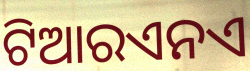
ଟିଆରଏନଏ